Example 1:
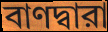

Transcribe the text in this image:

বাণদ্বারা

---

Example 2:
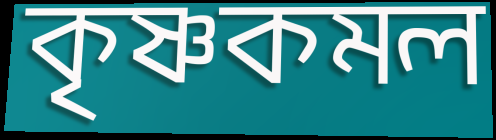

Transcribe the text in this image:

কৃষ্ণকমল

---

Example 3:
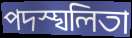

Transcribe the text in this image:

পদস্খলিতা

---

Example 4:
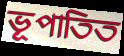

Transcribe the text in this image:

ভূপাতিত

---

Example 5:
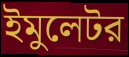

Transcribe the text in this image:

ইমুলেটর